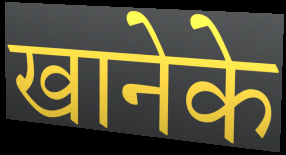
खानेके